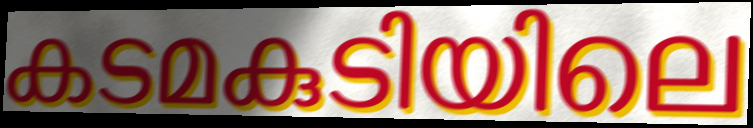
കടമകുടിയിലെ